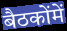
बैठकोंमें